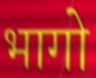
भागो